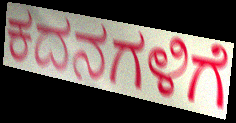
ಕದನಗಳಿಗೆ